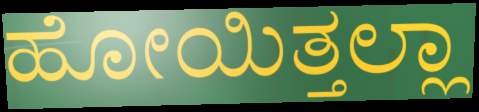
ಹೋಯಿತ್ತಲ್ಲಾ